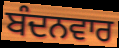
ਬੰਦਨਵਾਰ